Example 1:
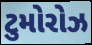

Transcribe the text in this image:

ટુમોરોઝ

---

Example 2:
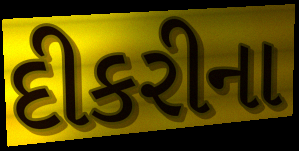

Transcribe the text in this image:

દીકરીના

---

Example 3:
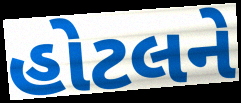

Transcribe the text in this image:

હોટલને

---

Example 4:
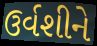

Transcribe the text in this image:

ઉર્વશીને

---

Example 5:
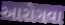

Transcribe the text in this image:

આરોગવા